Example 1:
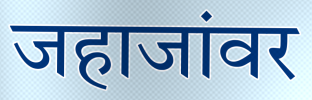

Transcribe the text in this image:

जहाजांवर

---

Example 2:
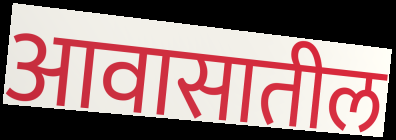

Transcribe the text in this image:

आवासातील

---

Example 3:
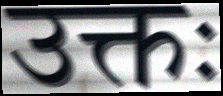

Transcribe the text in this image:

उक्तः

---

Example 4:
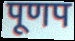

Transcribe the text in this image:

पूणप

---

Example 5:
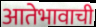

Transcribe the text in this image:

आतेभावाची